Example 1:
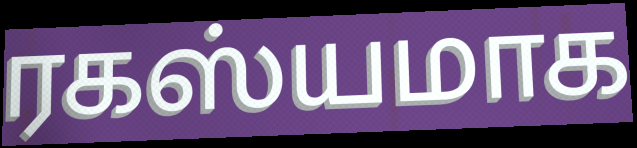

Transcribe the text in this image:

ரகஸ்யமாக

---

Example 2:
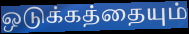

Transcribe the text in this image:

ஒடுக்கத்தையும்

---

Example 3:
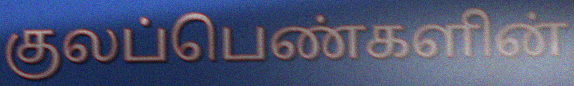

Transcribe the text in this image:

குலப்பெண்களின்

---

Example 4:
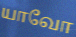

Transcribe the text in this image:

யாவோ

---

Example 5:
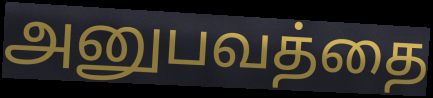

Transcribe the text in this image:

அனுபவத்தை